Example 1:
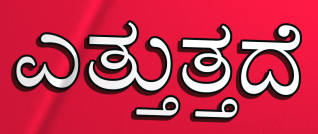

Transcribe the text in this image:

ಎತ್ತುತ್ತದೆ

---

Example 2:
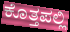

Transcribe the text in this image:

ಕೊತ್ತಪಲ್ಲಿ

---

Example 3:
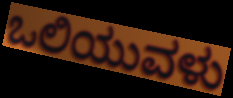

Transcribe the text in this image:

ಒಲಿಯುವಳು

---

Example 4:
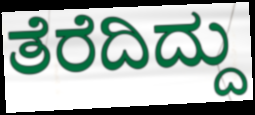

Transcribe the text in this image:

ತೆರೆದಿದ್ದು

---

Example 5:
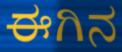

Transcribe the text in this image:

ಈಗಿನ